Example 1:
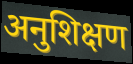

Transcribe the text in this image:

अनुशिक्षण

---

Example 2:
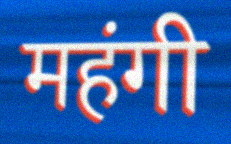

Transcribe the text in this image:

महंगी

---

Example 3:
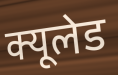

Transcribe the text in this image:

क्यूलेड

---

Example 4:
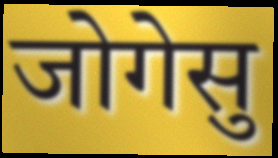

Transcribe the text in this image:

जोगेसु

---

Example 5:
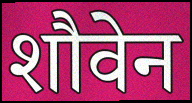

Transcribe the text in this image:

शौवेन